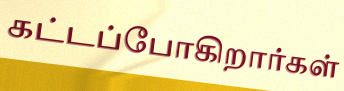
கட்டப்போகிறார்கள்